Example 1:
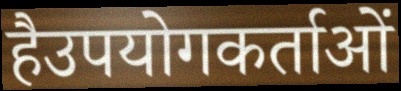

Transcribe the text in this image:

हैउपयोगकर्ताओं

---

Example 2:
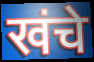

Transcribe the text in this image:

खंचे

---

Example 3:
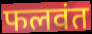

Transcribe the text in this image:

फलवंत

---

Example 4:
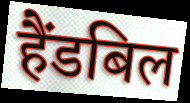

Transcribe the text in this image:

हैंडबिल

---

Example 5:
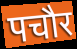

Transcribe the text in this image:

पचौर